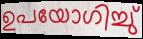
ഉപയോഗിച്ചു്